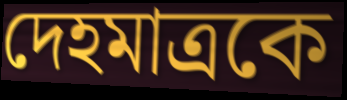
দেহমাত্রকে